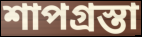
শাপগ্রস্তা